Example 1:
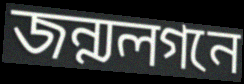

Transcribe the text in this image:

জন্মলগনে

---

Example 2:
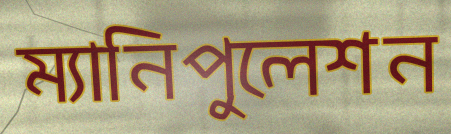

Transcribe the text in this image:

ম্যানিপুলেশন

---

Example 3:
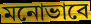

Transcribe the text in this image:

মনোভাবে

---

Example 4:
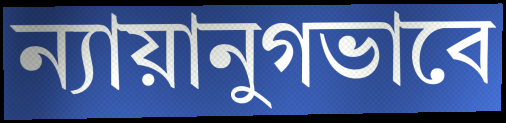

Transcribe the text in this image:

ন্যায়ানুগভাবে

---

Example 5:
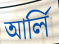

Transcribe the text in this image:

আর্লি